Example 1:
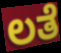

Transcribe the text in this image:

ಲತೆ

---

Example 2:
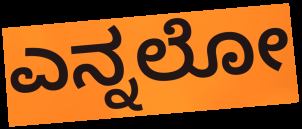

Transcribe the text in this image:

ಎನ್ನಲೋ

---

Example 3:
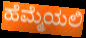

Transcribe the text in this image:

ಹೆಮ್ಮೆಯಲಿ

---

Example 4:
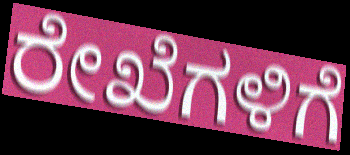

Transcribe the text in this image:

ರೇಖೆಗಳಿಗೆ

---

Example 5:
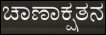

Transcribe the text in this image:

ಚಾಣಾಕ್ಷತನ